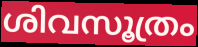
ശിവസൂത്രം